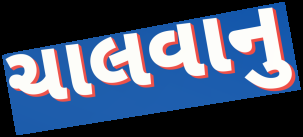
ચાલવાનુ